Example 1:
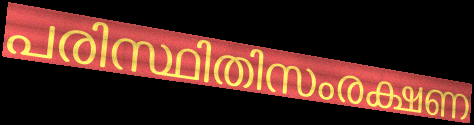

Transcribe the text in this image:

പരിസ്ഥിതിസംരക്ഷണ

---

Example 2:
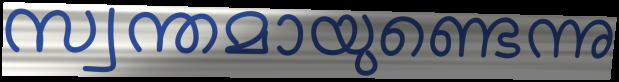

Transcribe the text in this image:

സ്വന്തമായുണ്ടെന്നു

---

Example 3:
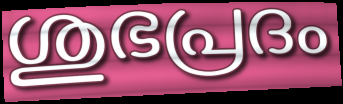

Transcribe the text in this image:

ശുഭപ്രദം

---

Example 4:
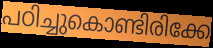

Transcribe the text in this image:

പഠിച്ചുകൊണ്ടിരിക്കേ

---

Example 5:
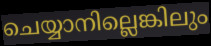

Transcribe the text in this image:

ചെയ്യാനില്ലെങ്കിലും